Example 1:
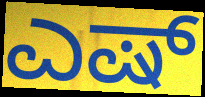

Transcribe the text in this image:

ಎಷ್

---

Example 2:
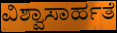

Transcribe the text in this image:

ವಿಶ್ವಾಸಾರ್ಹತೆ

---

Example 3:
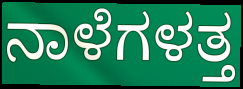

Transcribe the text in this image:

ನಾಳೆಗಳತ್ತ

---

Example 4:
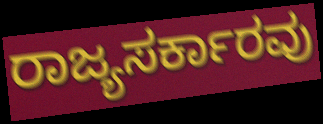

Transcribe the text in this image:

ರಾಜ್ಯಸರ್ಕಾರವು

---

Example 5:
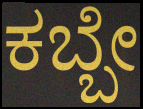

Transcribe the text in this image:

ಕಬ್ಬೇ